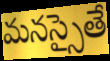
మనస్సైతే